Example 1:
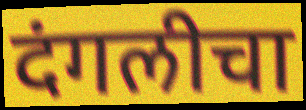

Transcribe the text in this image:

दंगलीचा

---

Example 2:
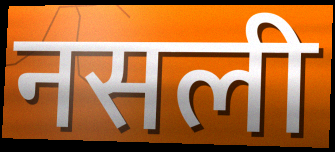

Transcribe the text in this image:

नसली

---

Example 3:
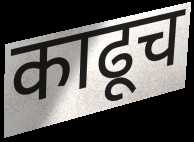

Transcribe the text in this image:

काढूच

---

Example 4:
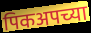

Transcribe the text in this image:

पिकअपच्या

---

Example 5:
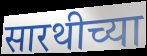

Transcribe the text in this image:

सारथीच्या